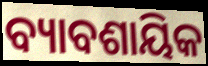
ବ୍ୟାବଶାୟିକ